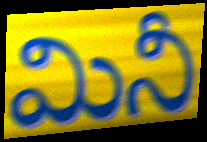
మినీ